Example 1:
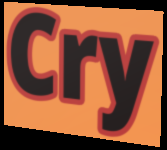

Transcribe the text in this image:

Cry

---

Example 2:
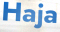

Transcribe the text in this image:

Haja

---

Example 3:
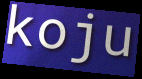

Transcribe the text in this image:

koju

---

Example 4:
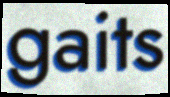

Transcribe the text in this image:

gaits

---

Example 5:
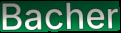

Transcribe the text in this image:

Bacher